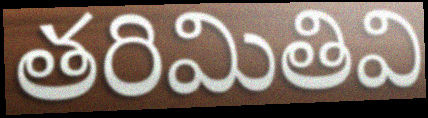
తరిమితివి